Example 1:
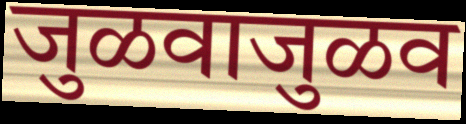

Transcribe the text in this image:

जुळवाजुळव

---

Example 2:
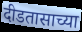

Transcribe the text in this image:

दीडतासाच्या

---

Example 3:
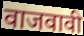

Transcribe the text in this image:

वाजवावी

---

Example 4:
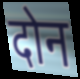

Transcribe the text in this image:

दोन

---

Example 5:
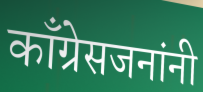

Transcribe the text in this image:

काँग्रेसजनांनी